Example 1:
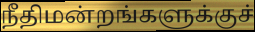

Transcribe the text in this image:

நீதிமன்றங்களுக்குச்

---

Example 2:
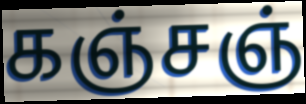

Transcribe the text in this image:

கஞ்சஞ்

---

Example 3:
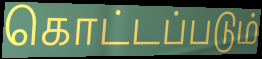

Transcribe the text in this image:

கொட்டப்படும்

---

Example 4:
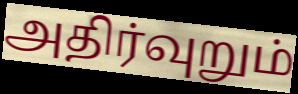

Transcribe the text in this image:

அதிர்வுறும்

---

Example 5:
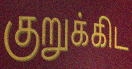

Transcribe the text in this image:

குறுக்கிட